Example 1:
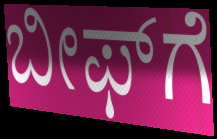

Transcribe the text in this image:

ಬೀಫ್‌ಗೆ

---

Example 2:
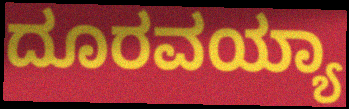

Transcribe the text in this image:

ದೂರವಯ್ಯಾ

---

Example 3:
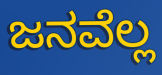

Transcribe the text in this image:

ಜನವೆಲ್ಲ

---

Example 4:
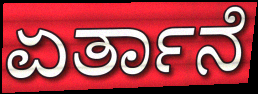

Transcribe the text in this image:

ಏರ್ತಾನೆ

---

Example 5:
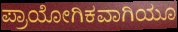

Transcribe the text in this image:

ಪ್ರಾಯೋಗಿಕವಾಗಿಯೂ